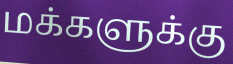
மக்களுக்கு